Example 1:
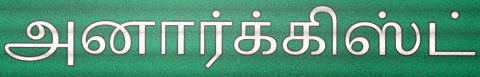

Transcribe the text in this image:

அனார்க்கிஸ்ட்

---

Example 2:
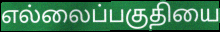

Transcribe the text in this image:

எல்லைப்பகுதியை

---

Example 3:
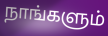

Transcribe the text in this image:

நாங்களும்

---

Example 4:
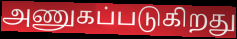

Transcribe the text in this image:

அணுகப்படுகிறது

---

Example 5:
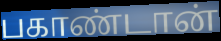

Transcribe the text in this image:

பகாண்டான்